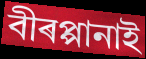
বীৰপ্পানাই